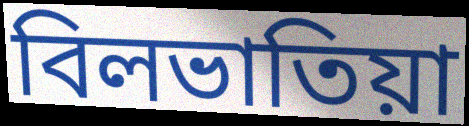
বিলভাতিয়া